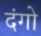
दंगो